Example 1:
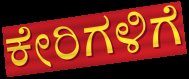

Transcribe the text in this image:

ಕೇರಿಗಳಿಗೆ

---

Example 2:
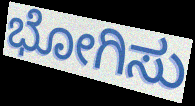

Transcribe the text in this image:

ಭೋಗಿಸು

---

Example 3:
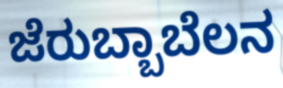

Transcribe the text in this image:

ಜೆರುಬ್ಬಾಬೆಲನ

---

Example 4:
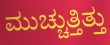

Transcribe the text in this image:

ಮುಚ್ಚುತ್ತಿತ್ತು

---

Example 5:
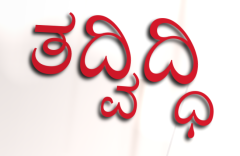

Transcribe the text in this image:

ತದ್ವಿದ್ಧಿ